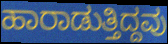
ಹಾರಾಡುತ್ತಿದ್ದವು